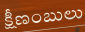
క్షీణంబులు